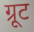
ग्रूट